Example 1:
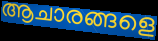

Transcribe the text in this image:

ആചാരങ്ങളെ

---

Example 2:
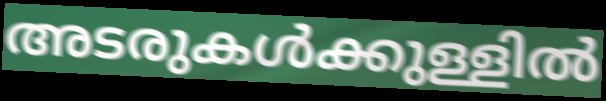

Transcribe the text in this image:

അടരുകൾക്കുള്ളിൽ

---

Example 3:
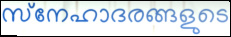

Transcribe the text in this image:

സ്‌നേഹാദരങ്ങളുടെ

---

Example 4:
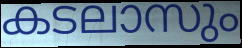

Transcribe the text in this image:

കടലാസും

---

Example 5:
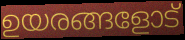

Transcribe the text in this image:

ഉയരങ്ങളോട്